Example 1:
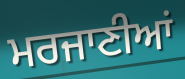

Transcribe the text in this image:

ਮਰਜਾਣੀਆਂ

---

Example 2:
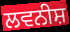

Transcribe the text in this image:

ਲਵਨੀਸ਼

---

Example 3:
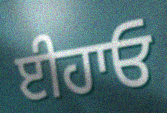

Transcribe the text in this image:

ਈਹਾਓ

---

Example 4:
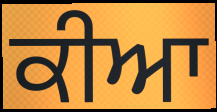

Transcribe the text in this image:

ਕੀਆ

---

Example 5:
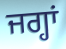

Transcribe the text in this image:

ਜਗ੍ਹਾਂ